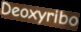
Deoxyribo